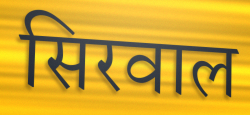
सिरवाल